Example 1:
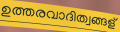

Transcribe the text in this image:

ഉത്തരവാദിത്വങ്ങള്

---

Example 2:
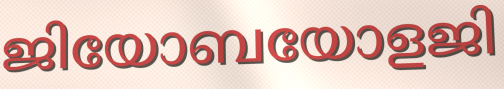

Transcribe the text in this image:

ജിയോബയോളജി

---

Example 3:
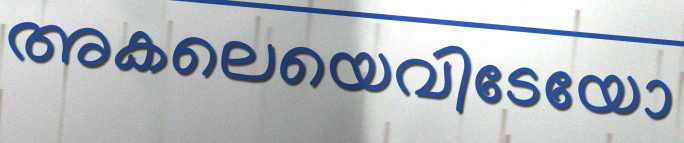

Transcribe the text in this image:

അകലെയെവിടേയോ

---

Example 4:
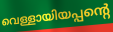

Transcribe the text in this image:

വെള്ളായിയപ്പന്റെ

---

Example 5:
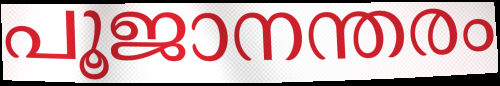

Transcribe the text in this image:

പൂജാനന്തരം